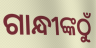
ଗାନ୍ଧୀଙ୍କଠୁଁ